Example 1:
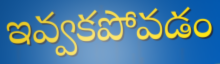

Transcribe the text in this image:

ఇవ్వకపోవడం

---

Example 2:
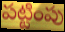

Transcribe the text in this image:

పట్టింపు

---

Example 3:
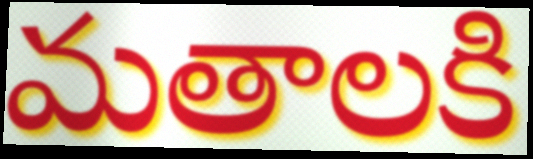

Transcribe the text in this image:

మతాలకి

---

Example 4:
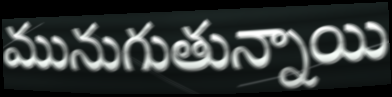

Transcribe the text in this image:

మునుగుతున్నాయి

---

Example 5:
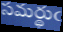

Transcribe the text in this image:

సమర్థుఁ